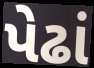
પેઢાં